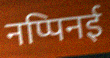
नप्पिनई